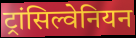
ट्रांसिल्वेनियन